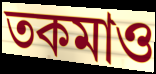
তকমাও